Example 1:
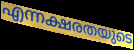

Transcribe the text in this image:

എന്നക്ഷരതയുടെ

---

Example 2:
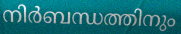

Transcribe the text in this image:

നിർബന്ധത്തിനും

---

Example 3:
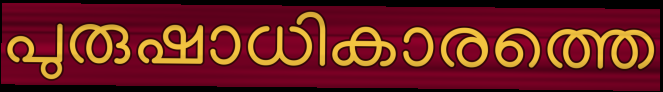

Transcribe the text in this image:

പുരുഷാധികാരത്തെ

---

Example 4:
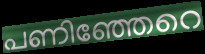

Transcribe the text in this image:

പണിഞ്ഞേറെ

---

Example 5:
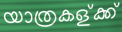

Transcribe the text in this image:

യാത്രകള്ക്ക്